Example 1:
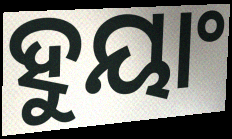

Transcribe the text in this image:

ହୁୟାଂ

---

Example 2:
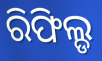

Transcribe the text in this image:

ରିଫିଲ୍ଡ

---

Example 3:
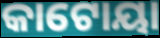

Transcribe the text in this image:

କାଟୋୟା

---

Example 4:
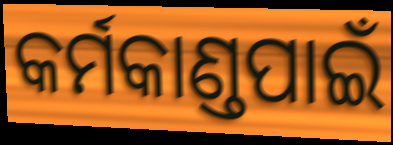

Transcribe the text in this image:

କର୍ମକାଣ୍ଡପାଇଁ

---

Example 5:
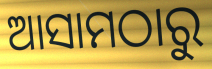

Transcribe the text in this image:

ଆସାମଠାରୁ